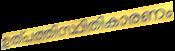
ഉത്പത്തിസ്ഥിതികാരണം